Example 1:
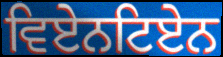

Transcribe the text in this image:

ਵਿਏਨਟਿਏਨ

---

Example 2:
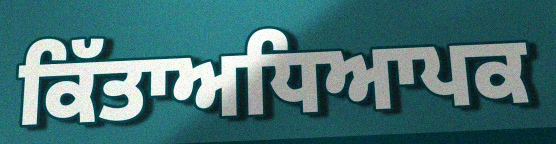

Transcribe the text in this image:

ਕਿੱਤਾਅਧਿਆਪਕ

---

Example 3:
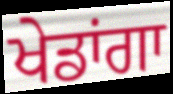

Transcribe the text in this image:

ਖੇਡਾਂਗਾ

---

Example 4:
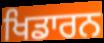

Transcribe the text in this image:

ਖਿਡਾਰਨ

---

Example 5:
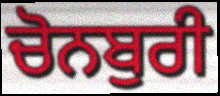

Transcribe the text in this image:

ਚੋਨਬੁਰੀ